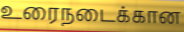
உரைநடைக்கான